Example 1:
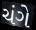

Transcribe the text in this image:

ચંગે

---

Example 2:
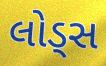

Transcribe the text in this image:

લોડ્સ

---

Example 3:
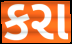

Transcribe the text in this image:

કરા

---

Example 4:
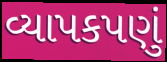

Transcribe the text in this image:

વ્યાપકપણું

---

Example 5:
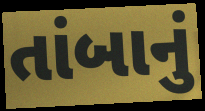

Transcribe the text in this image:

તાંબાનું